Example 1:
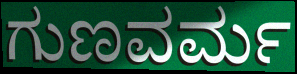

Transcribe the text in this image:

ಗುಣವರ್ಮ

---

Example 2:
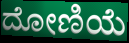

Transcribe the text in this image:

ದೋಣಿಯೆ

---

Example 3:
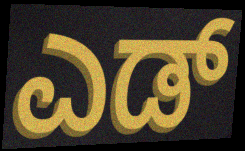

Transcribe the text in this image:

ಎಡ್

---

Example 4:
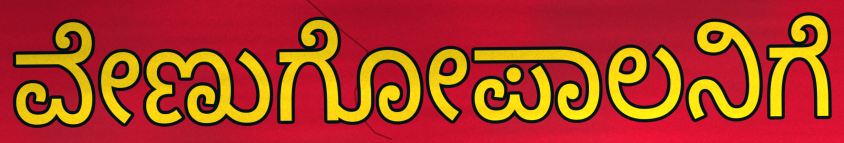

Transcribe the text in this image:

ವೇಣುಗೋಪಾಲನಿಗೆ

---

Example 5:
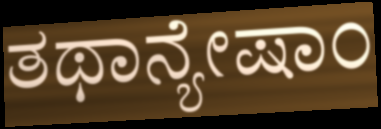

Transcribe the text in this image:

ತಥಾನ್ಯೇಷಾಂ